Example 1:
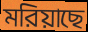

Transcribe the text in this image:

মরিয়াছে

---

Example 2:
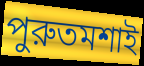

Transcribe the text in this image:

পুরুতমশাই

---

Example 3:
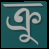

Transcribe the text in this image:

ক্রু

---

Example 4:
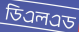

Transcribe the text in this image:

ডিএলএড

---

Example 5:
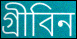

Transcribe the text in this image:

গ্রীবিন